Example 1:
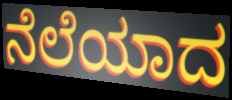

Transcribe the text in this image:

ನೆಲೆಯಾದ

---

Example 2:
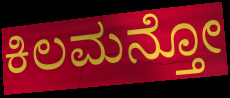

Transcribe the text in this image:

ಕಿಲಮನ್ತೋ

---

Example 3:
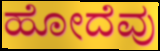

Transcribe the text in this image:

ಹೋದೆವು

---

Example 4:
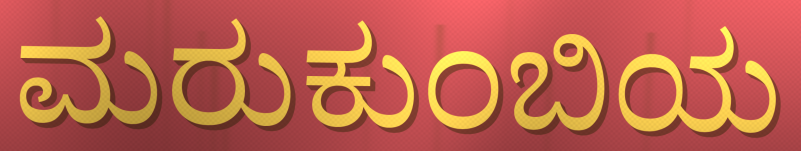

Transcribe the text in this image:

ಮರುಕುಂಬಿಯ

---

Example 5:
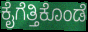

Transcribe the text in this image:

ಕೈಗೆತ್ತಿಕೊಂಡೆ